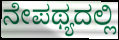
ನೇಪಥ್ಯದಲ್ಲಿ